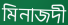
মিনাজদী